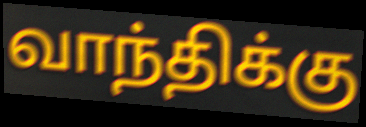
வாந்திக்கு